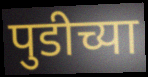
पुडीच्या